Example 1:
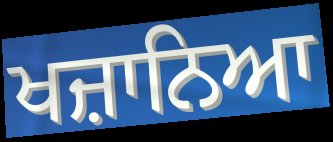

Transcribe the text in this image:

ਖਜ਼ਾਨਿਆ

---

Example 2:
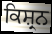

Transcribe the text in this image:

ਕਿਸ਼੍ਰਨ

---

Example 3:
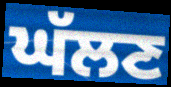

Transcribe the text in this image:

ਘੱਲਣ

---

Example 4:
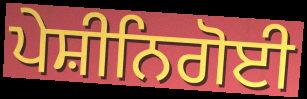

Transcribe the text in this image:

ਪੇਸ਼ੀਨਿਗੋਈ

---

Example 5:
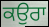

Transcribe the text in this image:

ਕਉਰਾ